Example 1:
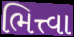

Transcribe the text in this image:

ભિત્ત્વા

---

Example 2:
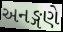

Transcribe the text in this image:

અનઙ્ગણે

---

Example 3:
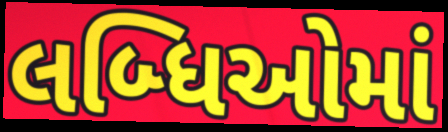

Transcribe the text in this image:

લબ્ધિઓમાં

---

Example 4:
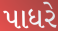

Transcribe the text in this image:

પાધરે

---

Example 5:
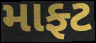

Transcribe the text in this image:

માફ્ટ